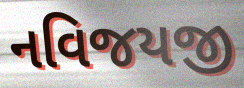
નવિજયજી